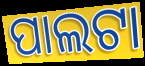
ପାଲଟା